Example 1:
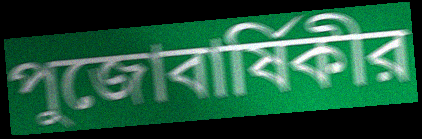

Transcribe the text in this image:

পুজোবার্ষিকীর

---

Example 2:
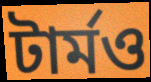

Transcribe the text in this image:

টার্মও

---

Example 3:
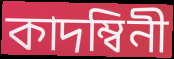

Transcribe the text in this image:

কাদম্বিনী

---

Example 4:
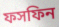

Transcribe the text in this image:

ফসফিন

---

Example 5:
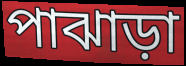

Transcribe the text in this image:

পাঝাড়া